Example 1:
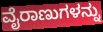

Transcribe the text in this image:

ವೈರಾಣುಗಳನ್ನು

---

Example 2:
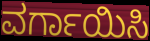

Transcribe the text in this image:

ವರ್ಗಾಯಿಸಿ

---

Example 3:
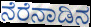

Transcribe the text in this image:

ನೆರೆನಾಡಿನ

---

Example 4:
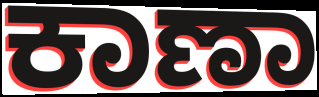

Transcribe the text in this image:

ಕಾಣಾ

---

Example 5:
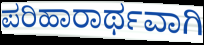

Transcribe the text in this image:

ಪರಿಹಾರಾರ್ಥವಾಗಿ